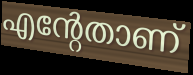
എന്റേതാണ്